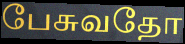
பேசுவதோ